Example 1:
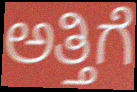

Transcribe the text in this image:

ಅತ್ತಿಗೆ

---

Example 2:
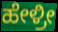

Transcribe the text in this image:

ಹೇಳ್ರೀ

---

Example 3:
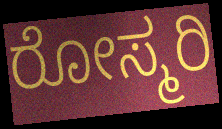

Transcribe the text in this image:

ರೋಸ್ಮರಿ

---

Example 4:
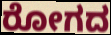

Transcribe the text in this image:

ರೋಗದ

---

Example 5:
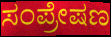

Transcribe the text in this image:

ಸಂಪ್ರೇಷಣ